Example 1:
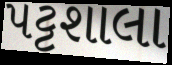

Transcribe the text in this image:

પટ્ટશાલા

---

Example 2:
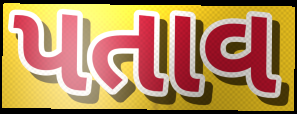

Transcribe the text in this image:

પતાવ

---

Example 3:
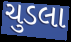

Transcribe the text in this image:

ચુડલા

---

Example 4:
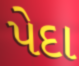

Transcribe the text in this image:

પેદા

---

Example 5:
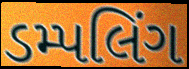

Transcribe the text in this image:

ડમ્પલિંગ